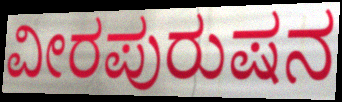
ವೀರಪುರುಷನ